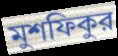
মুশফিকুর